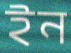
ইন